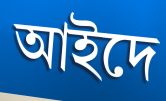
আইদে